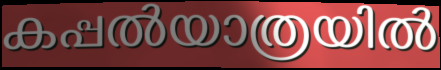
കപ്പൽയാത്രയിൽ